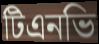
টিএনভি